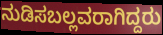
ನುಡಿಸಬಲ್ಲವರಾಗಿದ್ದರು